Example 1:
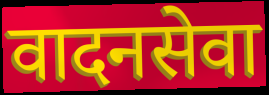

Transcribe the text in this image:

वादनसेवा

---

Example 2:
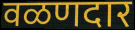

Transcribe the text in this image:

वळणदार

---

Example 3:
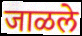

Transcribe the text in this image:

जाळले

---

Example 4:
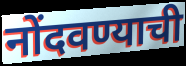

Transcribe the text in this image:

नोंदवण्याची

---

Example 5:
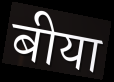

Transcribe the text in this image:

बीया